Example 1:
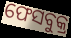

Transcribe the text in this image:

ଫେସବୁକ୍ର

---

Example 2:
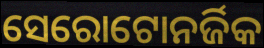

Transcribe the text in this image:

ସେରୋଟୋନର୍ଜିକ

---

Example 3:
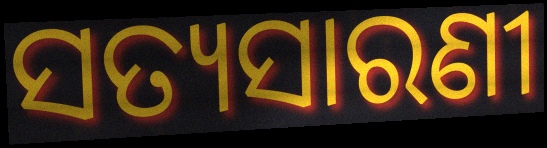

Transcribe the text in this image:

ସତ୍ୟସାରଣୀ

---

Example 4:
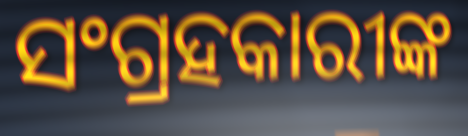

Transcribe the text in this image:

ସଂଗ୍ରହକାରୀଙ୍କ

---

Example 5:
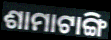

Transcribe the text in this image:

ଶାମାଟାଙ୍ଗି